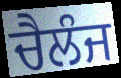
ਚੈਲੰਜ